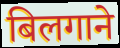
बिलगाने